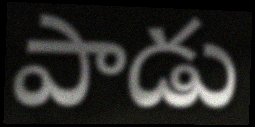
పాడు